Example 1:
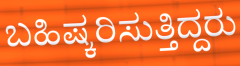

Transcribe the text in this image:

ಬಹಿಷ್ಕರಿಸುತ್ತಿದ್ದರು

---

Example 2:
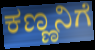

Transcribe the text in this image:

ಕಣ್ಣನಿಗೆ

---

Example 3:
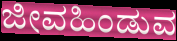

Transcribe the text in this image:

ಜೀವಹಿಂಡುವ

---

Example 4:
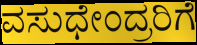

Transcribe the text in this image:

ವಸುಧೇಂದ್ರರಿಗೆ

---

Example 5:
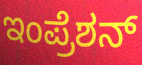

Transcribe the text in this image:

ಇಂಪ್ರೆಶನ್